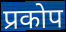
प्रकोप